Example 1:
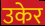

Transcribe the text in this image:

उकेर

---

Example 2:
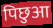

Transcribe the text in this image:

पिछुआ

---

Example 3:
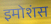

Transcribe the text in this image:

इमोशंस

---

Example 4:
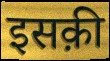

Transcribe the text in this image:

इसक़ी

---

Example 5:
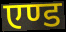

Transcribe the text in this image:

एण्ड